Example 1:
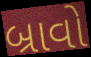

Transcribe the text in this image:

બ્રાવો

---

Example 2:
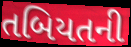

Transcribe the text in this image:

તબિયતની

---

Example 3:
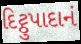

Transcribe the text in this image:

દિટ્ઠુપાદાનં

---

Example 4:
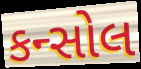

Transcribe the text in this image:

કન્સોલ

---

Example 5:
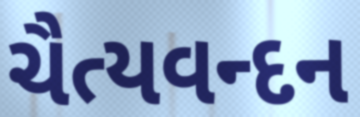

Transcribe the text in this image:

ચૈત્યવન્દન